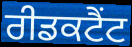
ਰੀਡਕਟੈਂਟ